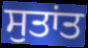
ਸੁਤਾਂਤ